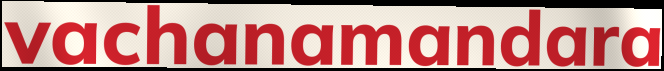
vachanamandara